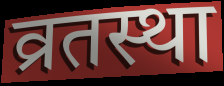
व्रतस्था